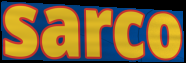
sarco